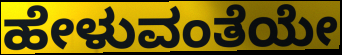
ಹೇಳುವಂತೆಯೇ